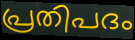
പ്രതിപദം